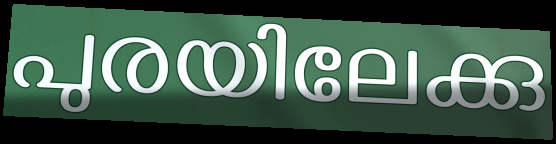
പുരയിലേക്കു